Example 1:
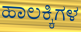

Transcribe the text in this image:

ಹಾಲಕ್ಕಿಗಳ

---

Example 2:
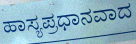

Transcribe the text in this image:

ಹಾಸ್ಯಪ್ರಧಾನವಾದ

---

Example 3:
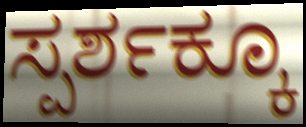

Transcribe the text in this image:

ಸ್ಪರ್ಶಕ್ಕೂ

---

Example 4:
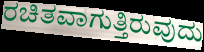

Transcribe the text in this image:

ರಚಿತವಾಗುತ್ತಿರುವುದು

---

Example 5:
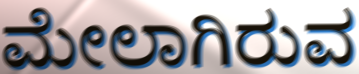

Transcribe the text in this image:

ಮೇಲಾಗಿರುವ